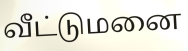
வீட்டுமனை